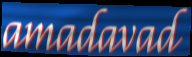
amadavad